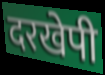
दरखेपी